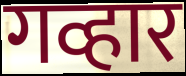
गव्हार